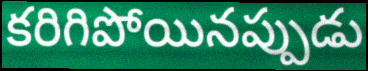
కరిగిపోయినప్పుడు